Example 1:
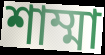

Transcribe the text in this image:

শাম্মা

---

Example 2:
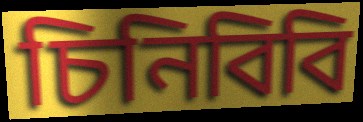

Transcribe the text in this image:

চিনিবিবি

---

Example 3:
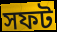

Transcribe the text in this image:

সফট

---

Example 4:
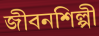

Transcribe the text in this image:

জীবনশিল্পী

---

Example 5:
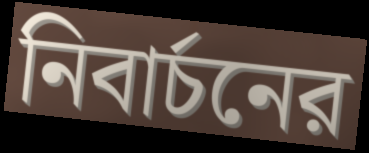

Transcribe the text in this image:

নিবার্চনের